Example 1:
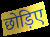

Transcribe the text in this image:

छोड़िए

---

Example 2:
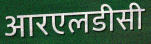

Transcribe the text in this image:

आरएलडीसी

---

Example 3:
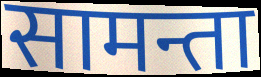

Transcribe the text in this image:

सामन्ता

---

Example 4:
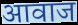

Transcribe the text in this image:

आवाज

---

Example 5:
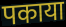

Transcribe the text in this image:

पकाया